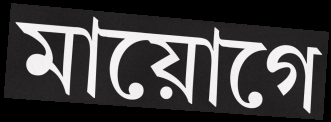
মায়োগে